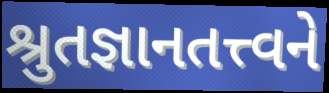
શ્રુતજ્ઞાનતત્ત્વને